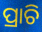
ପ୍ରାଚି